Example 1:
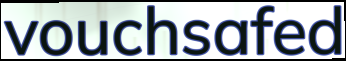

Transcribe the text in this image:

vouchsafed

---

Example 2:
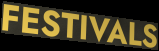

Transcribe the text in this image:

FESTIVALS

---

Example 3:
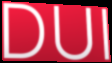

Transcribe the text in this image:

DUI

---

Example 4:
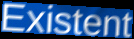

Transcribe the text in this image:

Existent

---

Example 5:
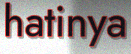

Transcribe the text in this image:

hatinya